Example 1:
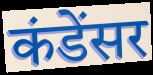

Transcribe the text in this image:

कंडेंसर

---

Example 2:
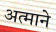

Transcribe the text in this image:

अत्माने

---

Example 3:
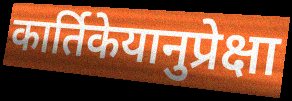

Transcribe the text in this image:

कार्तिकेयानुप्रेक्षा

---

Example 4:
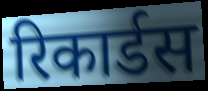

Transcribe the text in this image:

रिकार्डस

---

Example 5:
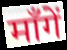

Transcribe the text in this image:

माँगें